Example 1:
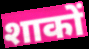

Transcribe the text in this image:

शाकों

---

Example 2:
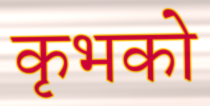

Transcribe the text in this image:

कृभको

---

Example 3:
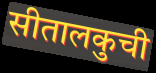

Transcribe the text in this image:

सीतालकुची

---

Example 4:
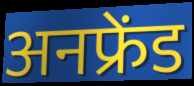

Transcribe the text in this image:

अनफ्रेंड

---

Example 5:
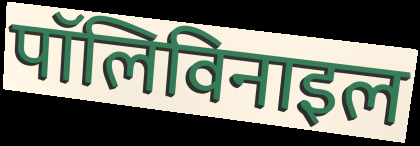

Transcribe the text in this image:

पॉलिविनाइल